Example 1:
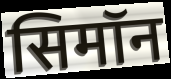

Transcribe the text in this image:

सिमॉन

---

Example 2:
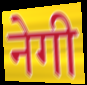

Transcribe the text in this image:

नेगी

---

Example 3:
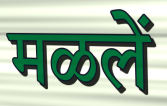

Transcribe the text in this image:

मळलें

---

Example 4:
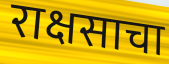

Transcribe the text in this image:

राक्षसाचा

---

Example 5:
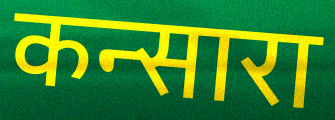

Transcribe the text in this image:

कन्सारा